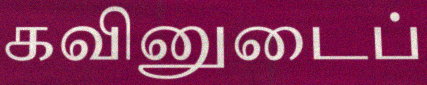
கவினுடைப்